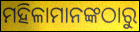
ମହିଳାମାନଙ୍କଠାରୁ